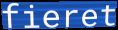
fieret